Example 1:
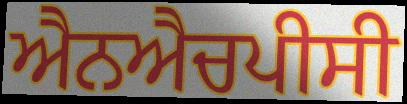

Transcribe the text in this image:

ਐਨਐਚਪੀਸੀ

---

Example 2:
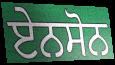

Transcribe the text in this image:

ਏਨਸੋਨ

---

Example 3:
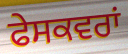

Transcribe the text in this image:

ਫੇਸਕਵਰਾਂ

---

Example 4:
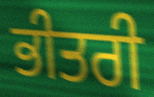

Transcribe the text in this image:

ਭੀਤਰੀ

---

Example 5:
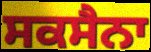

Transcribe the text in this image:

ਸਕਸੈਨਾ